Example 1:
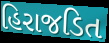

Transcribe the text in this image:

હિરાજડિત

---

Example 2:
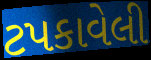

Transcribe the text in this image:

ટપકાવેલી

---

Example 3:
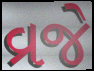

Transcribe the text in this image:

વ્રજે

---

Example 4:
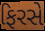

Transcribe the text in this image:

ફિરસે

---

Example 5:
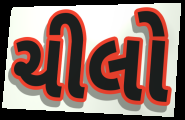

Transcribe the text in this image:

ચીલો